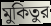
মুকিতুর